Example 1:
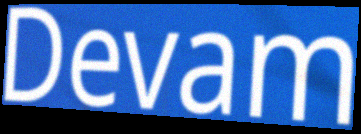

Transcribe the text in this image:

Devam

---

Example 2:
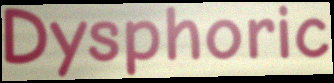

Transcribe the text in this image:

Dysphoric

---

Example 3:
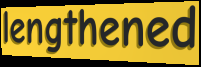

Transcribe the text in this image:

lengthened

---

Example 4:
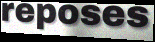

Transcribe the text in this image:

reposes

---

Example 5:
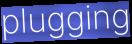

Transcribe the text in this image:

plugging